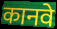
कानवे